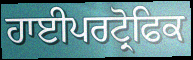
ਹਾਈਪਰਟ੍ਰੋਫਿਕ